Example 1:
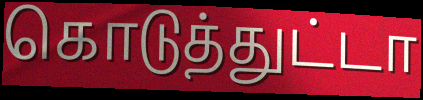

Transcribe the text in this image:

கொடுத்துட்டா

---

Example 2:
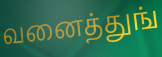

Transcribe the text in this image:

வனைத்துங்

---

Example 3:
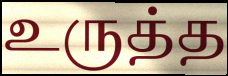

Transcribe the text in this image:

உருத்த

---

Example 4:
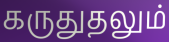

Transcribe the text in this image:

கருதுதலும்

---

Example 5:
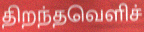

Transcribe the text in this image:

திறந்தவெளிச்